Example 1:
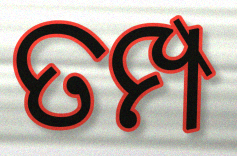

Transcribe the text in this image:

ତମ୍ପ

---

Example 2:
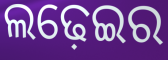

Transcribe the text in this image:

ଲଢ଼େଇର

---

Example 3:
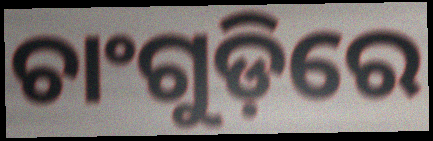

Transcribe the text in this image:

ଚାଂଗୁଡ଼ିରେ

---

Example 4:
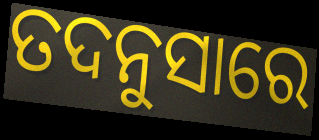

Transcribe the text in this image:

ତଦନୁସାରେ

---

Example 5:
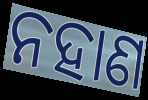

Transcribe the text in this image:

ନହାଣ